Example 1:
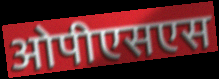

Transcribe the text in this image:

ओपीएसएस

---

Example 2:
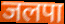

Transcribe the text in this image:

जलपा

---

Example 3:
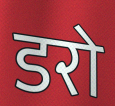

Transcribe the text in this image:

डरो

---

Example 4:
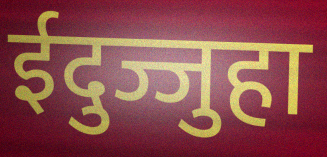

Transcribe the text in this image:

ईदुज्जुहा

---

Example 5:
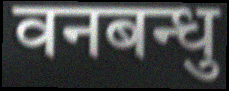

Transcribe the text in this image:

वनबन्धु